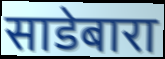
साडेबारा